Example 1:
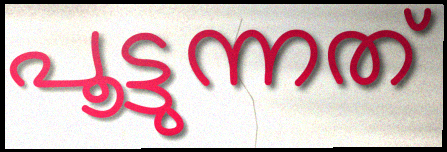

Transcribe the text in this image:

പൂട്ടുന്നത്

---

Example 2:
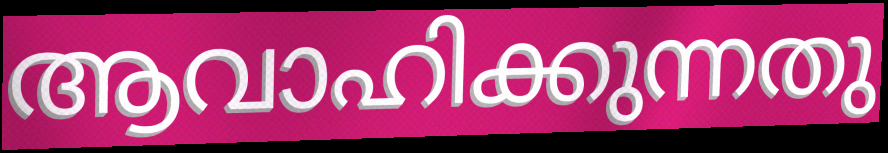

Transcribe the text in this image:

ആവാഹിക്കുന്നതു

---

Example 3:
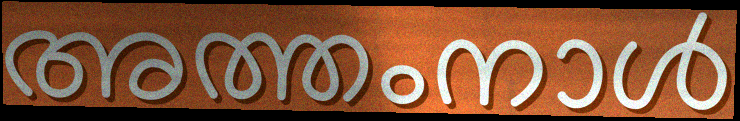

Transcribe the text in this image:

അത്തംനാൾ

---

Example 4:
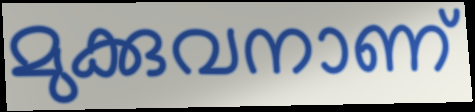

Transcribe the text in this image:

മുക്കുവനാണ്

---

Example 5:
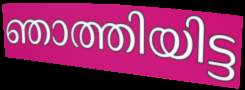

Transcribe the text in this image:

ഞാത്തിയിട്ട